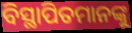
ବିସ୍ଥାପିତମାନଙ୍କୁ